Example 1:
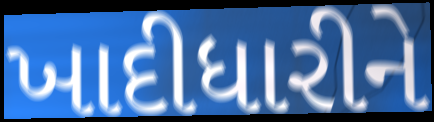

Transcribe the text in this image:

ખાદીધારીને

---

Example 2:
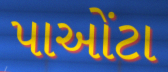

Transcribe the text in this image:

પાઓંટા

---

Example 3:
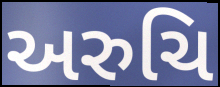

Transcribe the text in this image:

અરુચિ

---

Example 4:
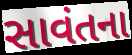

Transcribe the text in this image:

સાવંતના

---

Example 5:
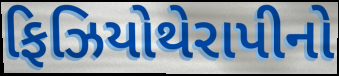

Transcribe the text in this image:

ફિઝિયોથેરાપીનો